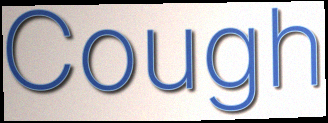
Cough